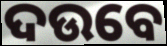
ଦଉବେ